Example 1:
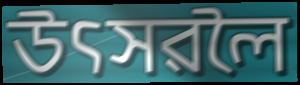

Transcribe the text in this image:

উৎসৱলৈ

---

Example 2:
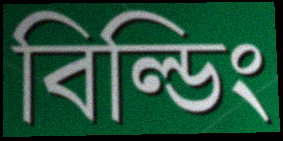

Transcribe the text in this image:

বিল্ডিং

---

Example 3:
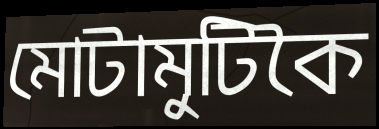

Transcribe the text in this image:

মোটামুটিকৈ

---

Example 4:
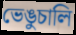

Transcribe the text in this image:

ভেঙুচালি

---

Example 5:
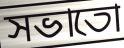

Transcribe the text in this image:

সভাতো